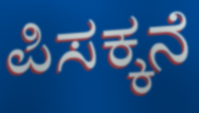
ಪಿಸಕ್ಕನೆ